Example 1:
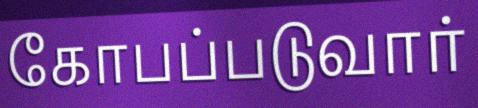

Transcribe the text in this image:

கோபப்படுவார்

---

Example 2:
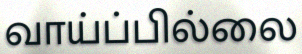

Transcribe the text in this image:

வாய்ப்பில்லை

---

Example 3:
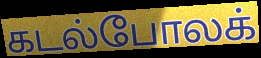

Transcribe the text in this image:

கடல்போலக்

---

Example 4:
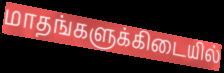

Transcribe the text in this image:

மாதங்களுக்கிடையில்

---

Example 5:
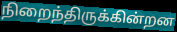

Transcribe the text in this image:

நிறைந்திருக்கின்றன